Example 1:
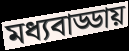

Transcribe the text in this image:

মধ্যবাড্ডায়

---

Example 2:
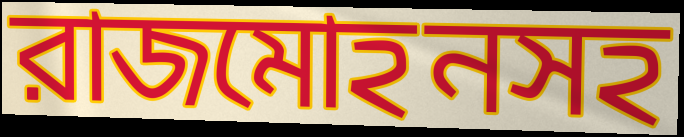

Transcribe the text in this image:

রাজমোহনসহ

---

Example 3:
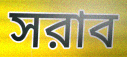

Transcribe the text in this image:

সরাব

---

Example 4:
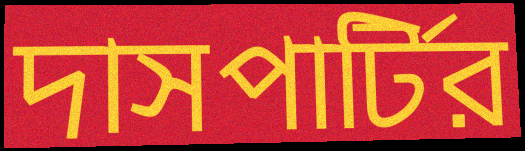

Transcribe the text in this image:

দাসপার্টির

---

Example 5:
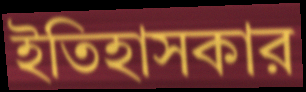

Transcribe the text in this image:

ইতিহাসকার